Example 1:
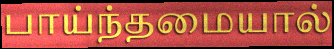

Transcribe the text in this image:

பாய்ந்தமையால்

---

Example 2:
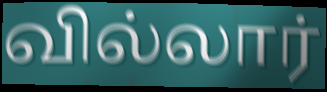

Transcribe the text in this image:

வில்லார்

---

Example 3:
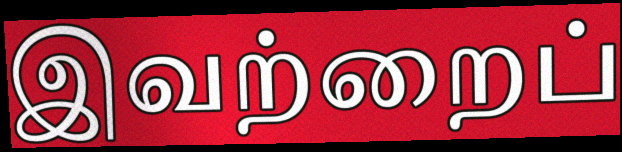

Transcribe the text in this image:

இவற்றைப்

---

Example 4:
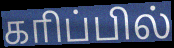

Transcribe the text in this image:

கரிப்பில்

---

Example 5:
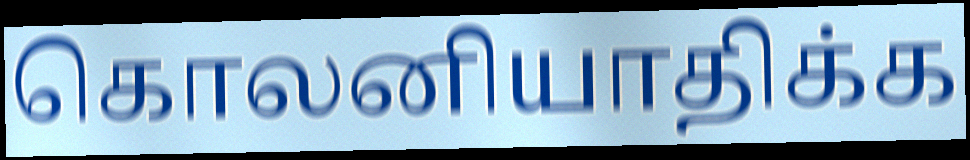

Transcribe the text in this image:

கொலனியாதிக்க